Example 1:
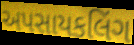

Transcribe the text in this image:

અપસાયકલિંગ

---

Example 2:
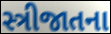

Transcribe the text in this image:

સ્ત્રીજાતના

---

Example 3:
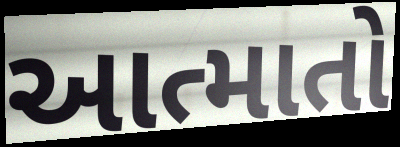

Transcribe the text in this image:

આત્માતો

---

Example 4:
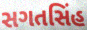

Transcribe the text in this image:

સગતસિંહ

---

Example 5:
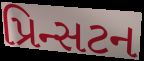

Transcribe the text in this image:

પ્રિન્સટન